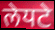
लेयटे